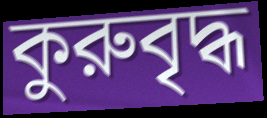
কুরুবৃদ্ধ